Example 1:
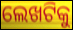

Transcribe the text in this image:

ଲେଖଟିକୁ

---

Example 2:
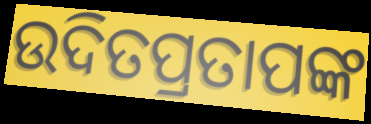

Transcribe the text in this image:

ଉଦିତପ୍ରତାପଙ୍କ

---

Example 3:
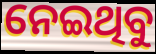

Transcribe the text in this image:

ନେଇଥିବୁ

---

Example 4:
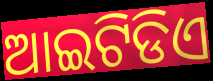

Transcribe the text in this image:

ଆଇଟିଡିଏ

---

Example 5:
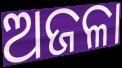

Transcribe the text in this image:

ଅଜଳା